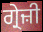
ਗ੍ਰੇਜ਼ੀ